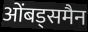
ओंबड्समैन